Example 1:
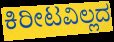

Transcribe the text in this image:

ಕಿರೀಟವಿಲ್ಲದ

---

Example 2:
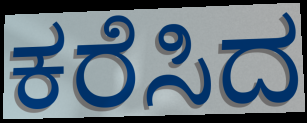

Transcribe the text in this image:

ಕರೆಸಿದ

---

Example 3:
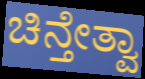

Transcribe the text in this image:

ಚಿನ್ತೇತ್ವಾ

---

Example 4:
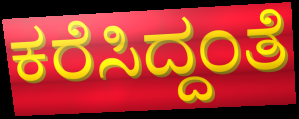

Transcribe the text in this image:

ಕರೆಸಿದ್ದಂತೆ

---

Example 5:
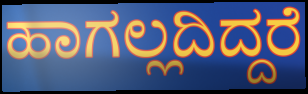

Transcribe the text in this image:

ಹಾಗಲ್ಲದಿದ್ದರೆ